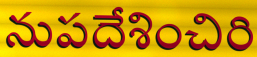
నుపదేశించిరి